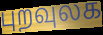
புறவுலக